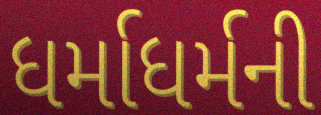
ધર્માધર્મની